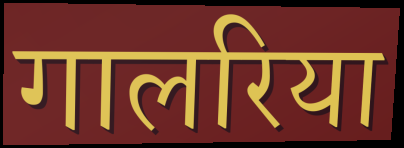
गालरिया